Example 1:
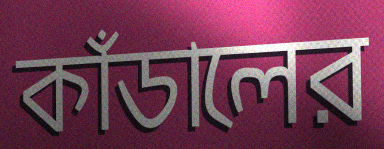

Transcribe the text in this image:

কাঁডালের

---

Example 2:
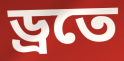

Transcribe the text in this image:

ড্রতে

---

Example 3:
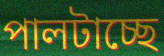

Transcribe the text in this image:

পালটাচ্ছে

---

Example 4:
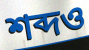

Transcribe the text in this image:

শব্দও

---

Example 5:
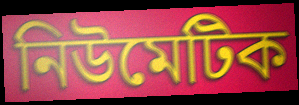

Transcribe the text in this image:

নিউমেটিক